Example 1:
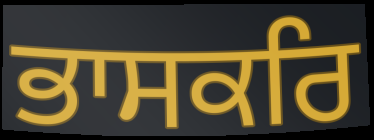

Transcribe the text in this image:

ਭਾਸਕਰਿ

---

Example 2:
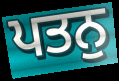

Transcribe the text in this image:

ਪਤਨੁ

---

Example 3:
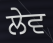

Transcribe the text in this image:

ਲੇਵ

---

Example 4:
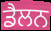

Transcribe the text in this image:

ਡੈਲਨ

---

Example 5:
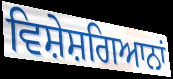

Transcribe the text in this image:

ਵਿਸ਼ੇਸ਼ਗਿਆਨਾਂ